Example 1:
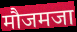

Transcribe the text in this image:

मौजमजा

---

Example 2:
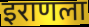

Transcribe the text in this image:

इराणला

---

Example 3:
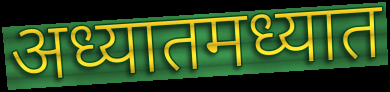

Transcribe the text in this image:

अध्यातमध्यात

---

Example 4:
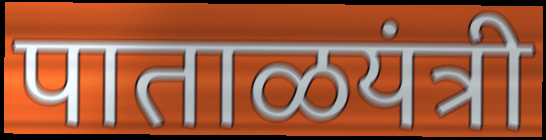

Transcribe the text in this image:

पाताळयंत्री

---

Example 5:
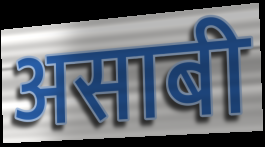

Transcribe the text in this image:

असाबी